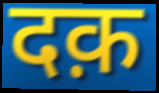
दक़